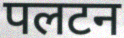
पलटन